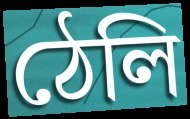
ঠেলি